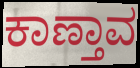
ಕಾಣ್ತಾವ